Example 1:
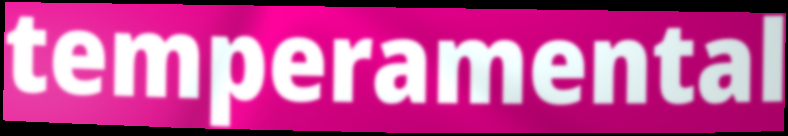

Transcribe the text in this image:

temperamental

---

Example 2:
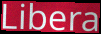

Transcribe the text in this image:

Libera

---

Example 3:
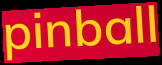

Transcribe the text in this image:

pinball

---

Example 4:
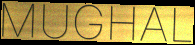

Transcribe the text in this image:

MUGHAL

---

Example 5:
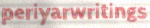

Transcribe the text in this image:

periyarwritings